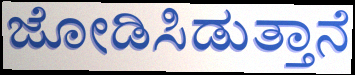
ಜೋಡಿಸಿಡುತ್ತಾನೆ